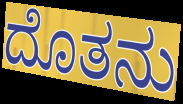
ದೊತನು